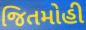
જિતમોહી